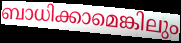
ബാധിക്കാമെങ്കിലും